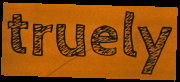
truely